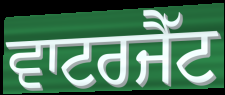
ਵਾਟਰਜੈੱਟ